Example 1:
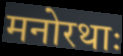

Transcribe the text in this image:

मनोरथाः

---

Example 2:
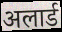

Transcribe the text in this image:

अलार्ड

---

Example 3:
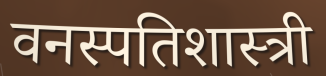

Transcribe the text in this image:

वनस्पतिशास्त्री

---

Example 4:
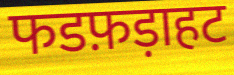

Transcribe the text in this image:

फडफ़ड़ाहट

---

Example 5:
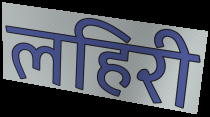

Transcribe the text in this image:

लहिरी